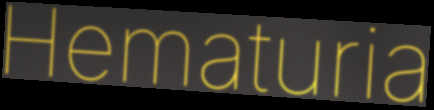
Hematuria